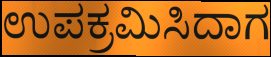
ಉಪಕ್ರಮಿಸಿದಾಗ